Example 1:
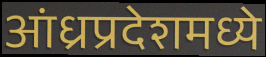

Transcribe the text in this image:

आंध्रप्रदेशमध्ये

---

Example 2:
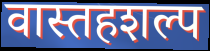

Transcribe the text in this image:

वास्तहशल्प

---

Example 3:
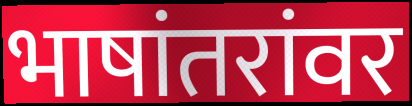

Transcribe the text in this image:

भाषांतरांवर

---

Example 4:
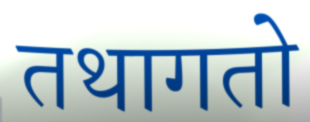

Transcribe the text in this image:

तथागतो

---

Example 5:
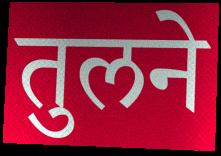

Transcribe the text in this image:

तुलने